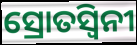
ସ୍ରୋତସ୍ୱିନୀ